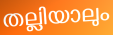
തല്ലിയാലും